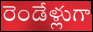
రెండేళ్లుగా